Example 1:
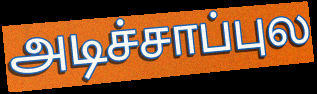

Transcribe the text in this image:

அடிச்சாப்புல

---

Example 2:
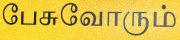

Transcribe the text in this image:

பேசுவோரும்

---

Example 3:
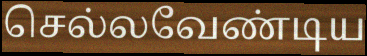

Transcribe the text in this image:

செல்லவேண்டிய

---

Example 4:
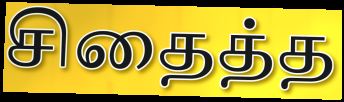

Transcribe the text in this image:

சிதைத்த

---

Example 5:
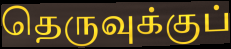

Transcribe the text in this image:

தெருவுக்குப்